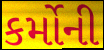
કર્મોની